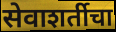
सेवाशर्तीचा